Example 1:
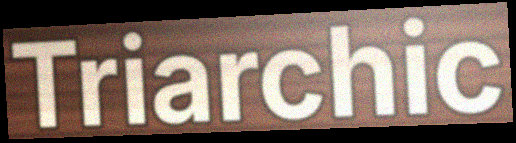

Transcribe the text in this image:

Triarchic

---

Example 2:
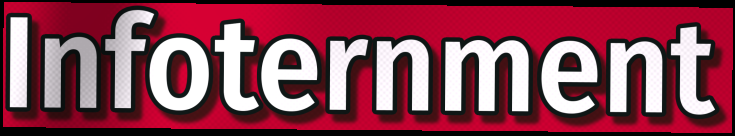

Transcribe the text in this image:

Infoternment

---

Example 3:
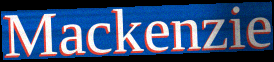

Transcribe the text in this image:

Mackenzie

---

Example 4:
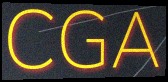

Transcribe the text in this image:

CGA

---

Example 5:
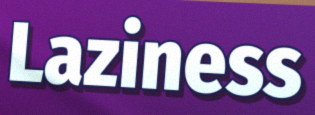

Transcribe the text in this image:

Laziness